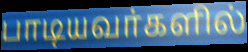
பாடியவர்களில்